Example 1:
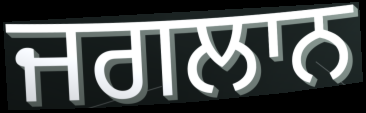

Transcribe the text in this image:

ਜਗਲਾਨ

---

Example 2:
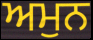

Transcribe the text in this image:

ਅਮੁਨ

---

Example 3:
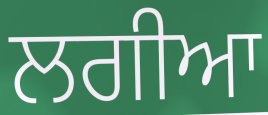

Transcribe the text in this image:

ਲਗੀਆ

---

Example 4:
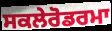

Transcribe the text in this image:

ਸਕਲੇਰੋਡਰਮਾ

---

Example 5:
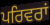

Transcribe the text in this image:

ਪਰਿਵਰਾਂ